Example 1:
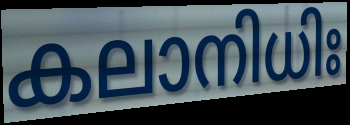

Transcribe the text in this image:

കലാനിധിഃ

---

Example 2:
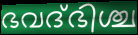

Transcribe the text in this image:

ഭവദ്ഭിശ്ച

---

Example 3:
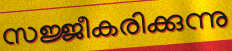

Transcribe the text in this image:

സജ്ജീകരിക്കുന്നു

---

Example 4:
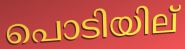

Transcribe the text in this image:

പൊടിയില്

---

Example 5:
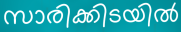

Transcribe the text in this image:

സാരിക്കിടയിൽ